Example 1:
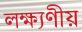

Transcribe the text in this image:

লক্ষ্যণীয়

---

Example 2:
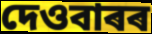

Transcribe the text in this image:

দেওবাৰৰ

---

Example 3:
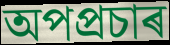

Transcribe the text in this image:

অপপ্ৰচাৰ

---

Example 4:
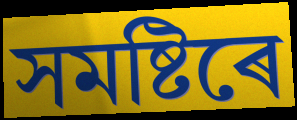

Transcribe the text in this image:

সমষ্টিৰে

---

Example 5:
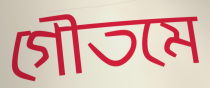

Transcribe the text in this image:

গৌতমে